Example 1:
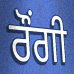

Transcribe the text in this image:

ਰੌਂਗੀ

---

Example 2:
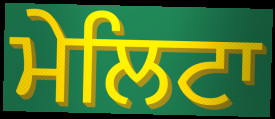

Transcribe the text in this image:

ਮੇਲਿਟਾ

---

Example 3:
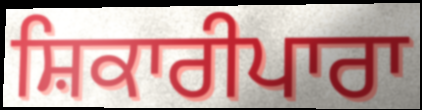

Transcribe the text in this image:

ਸ਼ਿਕਾਰੀਪਾਰਾ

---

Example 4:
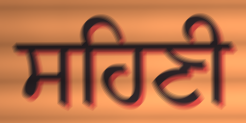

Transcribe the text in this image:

ਸਹਿਣੀ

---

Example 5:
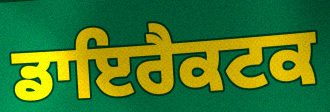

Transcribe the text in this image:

ਡਾਇਰੈਕਟਕ